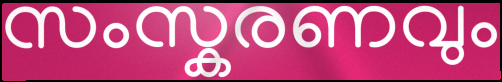
സംസ്കരണവും